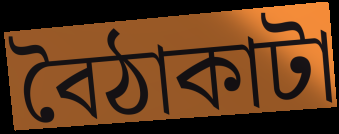
বৈঠাকাটা